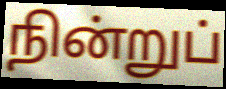
நின்றுப்